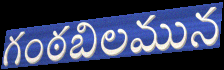
గంఠబిలమున